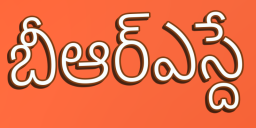
బీఆర్ఎస్దే